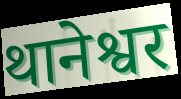
थानेश्वर